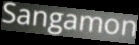
Sangamon